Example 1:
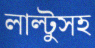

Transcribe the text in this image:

লাল্টুসহ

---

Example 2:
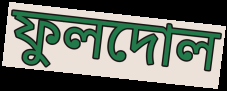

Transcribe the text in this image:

ফুলদোল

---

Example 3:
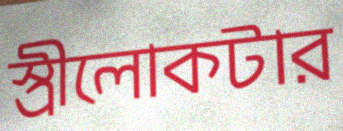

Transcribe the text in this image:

স্ত্রীলোকটার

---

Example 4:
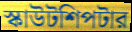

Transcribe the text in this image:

স্কাউটশিপটার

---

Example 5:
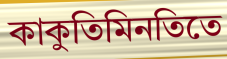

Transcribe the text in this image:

কাকুতিমিনতিতে